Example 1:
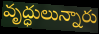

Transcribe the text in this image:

వృద్ధులున్నారు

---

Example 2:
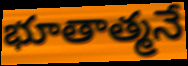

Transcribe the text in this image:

భూతాత్మనే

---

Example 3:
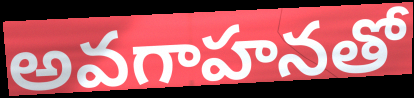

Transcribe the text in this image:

అవగాహనతో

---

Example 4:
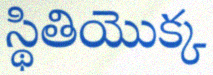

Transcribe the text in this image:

స్థితియొక్క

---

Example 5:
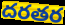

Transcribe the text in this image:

దరతర